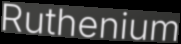
Ruthenium